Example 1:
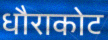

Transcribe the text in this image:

धौराकोट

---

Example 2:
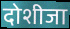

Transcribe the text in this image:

दोशीजा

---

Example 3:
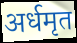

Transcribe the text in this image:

अर्धमृत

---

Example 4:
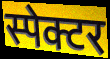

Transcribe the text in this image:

स्पेक्टर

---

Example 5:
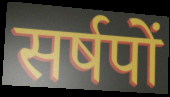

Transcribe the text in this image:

सर्षपों